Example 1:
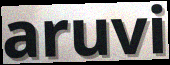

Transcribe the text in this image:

aruvi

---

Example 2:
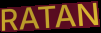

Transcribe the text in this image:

RATAN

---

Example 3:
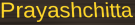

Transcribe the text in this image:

Prayashchitta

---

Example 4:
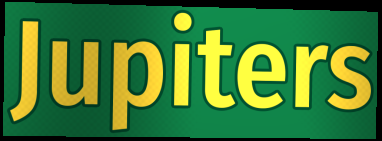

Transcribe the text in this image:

Jupiters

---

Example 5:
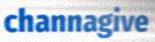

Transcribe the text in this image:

channagive